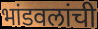
भांडवलांची